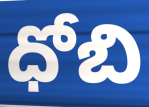
ధోబి